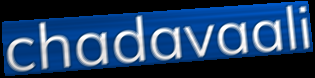
chadavaali